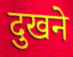
दुखने